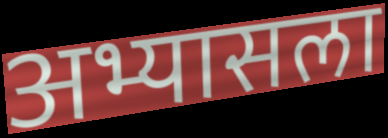
अभ्यासला